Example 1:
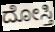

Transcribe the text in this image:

ದೋಸ್ತಿ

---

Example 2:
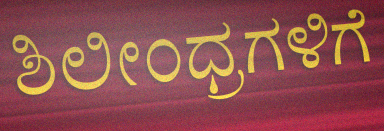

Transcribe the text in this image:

ಶಿಲೀಂಧ್ರಗಳಿಗೆ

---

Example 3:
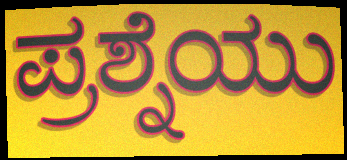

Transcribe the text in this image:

ಪ್ರಶ್ನೆಯು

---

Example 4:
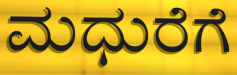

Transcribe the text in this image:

ಮಧುರೆಗೆ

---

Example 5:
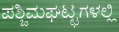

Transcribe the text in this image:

ಪಶ್ಚಿಮಘಟ್ಟಗಳಲ್ಲಿ